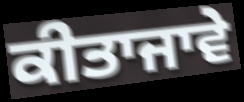
ਕੀਤਾਜਾਵੇ